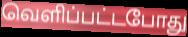
வெளிப்பட்டபோது